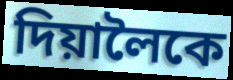
দিয়ালৈকে